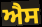
ਐੈਸ